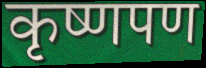
कृष्णपण